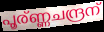
പൂര്ണ്ണചന്ദ്രന്